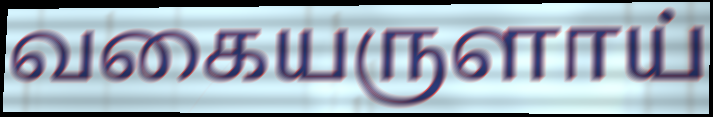
வகையருளாய்